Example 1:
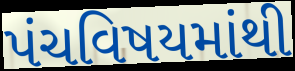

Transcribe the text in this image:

પંચવિષયમાંથી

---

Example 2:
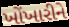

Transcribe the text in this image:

ખોંખારીને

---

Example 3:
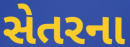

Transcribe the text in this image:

સેતરના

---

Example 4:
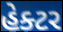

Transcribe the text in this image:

હેક્ટર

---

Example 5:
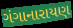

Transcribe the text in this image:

ગંગાનારાયણ